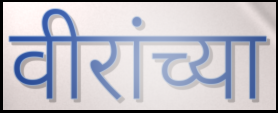
वीरांच्या